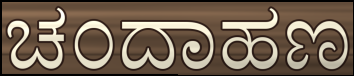
ಚಂದಾಹಣ